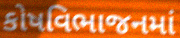
કોષવિભાજનમાં